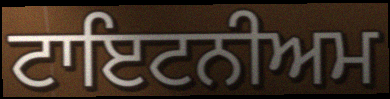
ਟਾਇਟਨੀਅਮ